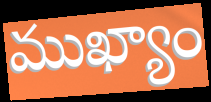
ముఖ్యాం